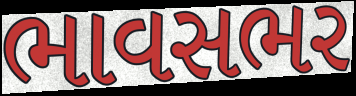
ભાવસભર